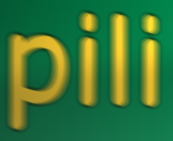
pili